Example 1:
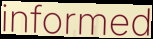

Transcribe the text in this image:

informed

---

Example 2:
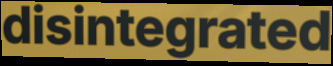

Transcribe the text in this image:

disintegrated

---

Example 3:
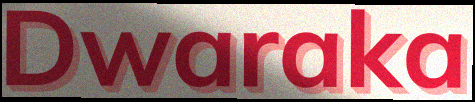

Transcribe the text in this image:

Dwaraka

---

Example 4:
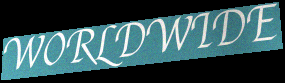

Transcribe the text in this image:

WORLDWIDE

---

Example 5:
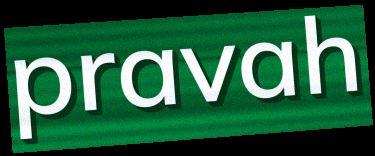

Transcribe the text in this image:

pravah